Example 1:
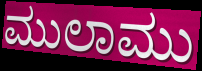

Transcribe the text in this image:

ಮುಲಾಮು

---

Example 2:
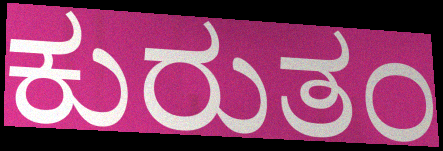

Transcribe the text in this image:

ಕುರುತಂ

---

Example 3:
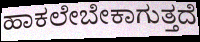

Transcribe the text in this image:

ಹಾಕಲೇಬೇಕಾಗುತ್ತದೆ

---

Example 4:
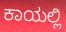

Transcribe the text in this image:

ಕಾಯಲ್ಲಿ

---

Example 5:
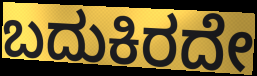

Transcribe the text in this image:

ಬದುಕಿರದೇ